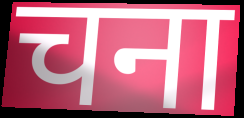
चना